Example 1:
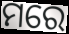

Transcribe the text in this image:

ମରେ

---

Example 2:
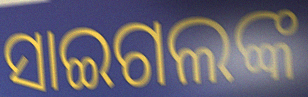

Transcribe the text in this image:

ସାଇଗଲଙ୍କ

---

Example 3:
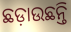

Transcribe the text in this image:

ଛଡ଼ାଉଛନ୍ତି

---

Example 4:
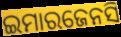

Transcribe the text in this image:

ଇମାରଜେନସି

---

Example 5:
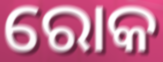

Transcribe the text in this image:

ରୋକ